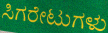
ಸಿಗರೇಟುಗಳು